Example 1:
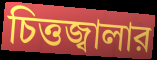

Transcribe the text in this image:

চিত্তজ্বালার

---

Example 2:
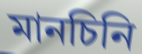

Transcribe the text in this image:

মানচিনি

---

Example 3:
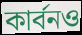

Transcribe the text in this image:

কার্বনও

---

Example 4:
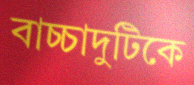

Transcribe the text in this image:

বাচ্চাদুটিকে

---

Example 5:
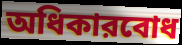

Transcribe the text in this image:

অধিকারবোধ